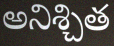
అనిశ్చిత